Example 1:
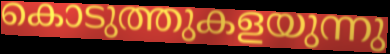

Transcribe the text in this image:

കൊടുത്തുകളയുന്നു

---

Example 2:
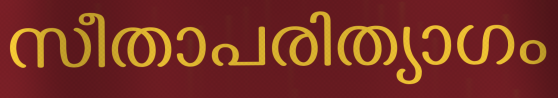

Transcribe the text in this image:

സീതാപരിത്യാഗം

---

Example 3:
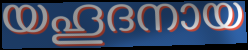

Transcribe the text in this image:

യഹൂദനായ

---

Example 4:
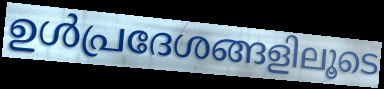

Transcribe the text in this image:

ഉൾപ്രദേശങ്ങളിലൂടെ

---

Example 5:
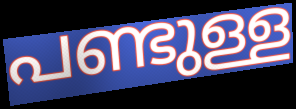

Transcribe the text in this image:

പണ്ടുള്ള